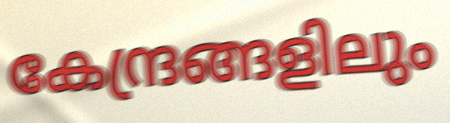
കേന്ദ്രങ്ങളിലും